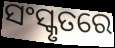
ସଂସ୍କୃତରେ